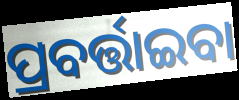
ପ୍ରବର୍ତ୍ତାଇବା